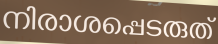
നിരാശപ്പെടരുത്